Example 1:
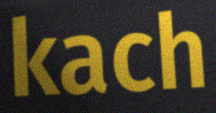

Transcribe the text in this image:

kach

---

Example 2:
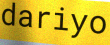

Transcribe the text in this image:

dariyo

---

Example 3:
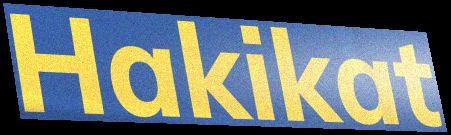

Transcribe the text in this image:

Hakikat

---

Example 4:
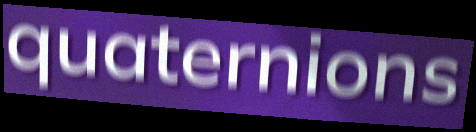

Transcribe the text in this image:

quaternions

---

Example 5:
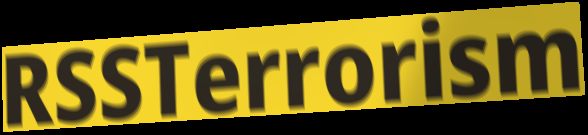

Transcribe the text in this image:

RSSTerrorism